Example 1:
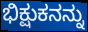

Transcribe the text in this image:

ಭಿಕ್ಷುಕನನ್ನು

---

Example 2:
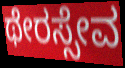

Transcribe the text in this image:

ಥೇರಸ್ಸೇವ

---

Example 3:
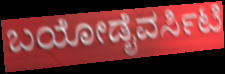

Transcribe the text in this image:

ಬಯೋಡೈವರ್ಸಿಟಿ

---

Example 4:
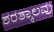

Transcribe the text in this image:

ಶರತ್ಕಾಲವು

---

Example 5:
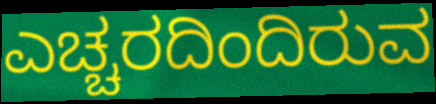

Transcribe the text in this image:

ಎಚ್ಚರದಿಂದಿರುವ